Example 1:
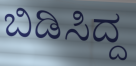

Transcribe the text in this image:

ಬಿಡಿಸಿದ್ದ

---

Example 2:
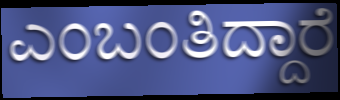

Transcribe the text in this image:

ಎಂಬಂತಿದ್ದಾರೆ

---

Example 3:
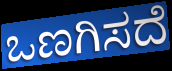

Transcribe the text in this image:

ಒಣಗಿಸದೆ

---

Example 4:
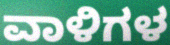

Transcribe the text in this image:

ವಾಳಿಗಳ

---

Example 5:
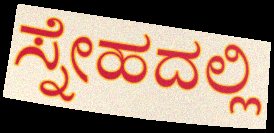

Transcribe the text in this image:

ಸ್ನೇಹದಲ್ಲಿ